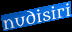
nudisiri